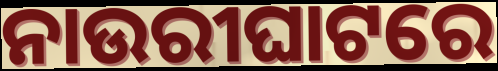
ନାଉରୀଘାଟରେ